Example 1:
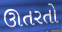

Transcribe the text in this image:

ઊતરતો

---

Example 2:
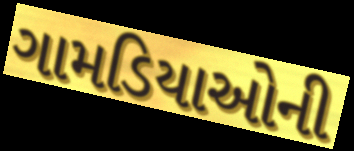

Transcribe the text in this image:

ગામડિયાઓની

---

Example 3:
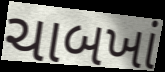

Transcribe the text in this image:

ચાબખાં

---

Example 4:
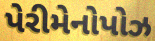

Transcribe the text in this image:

પેરીમેનોપોઝ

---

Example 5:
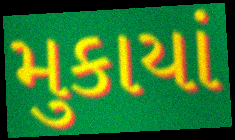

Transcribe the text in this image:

મુકાયાં